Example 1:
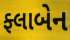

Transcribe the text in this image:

ફ્લાબેન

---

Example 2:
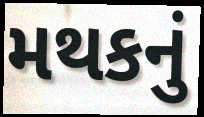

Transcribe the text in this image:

મથકનું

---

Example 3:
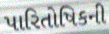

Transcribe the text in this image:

પારિતોષિકની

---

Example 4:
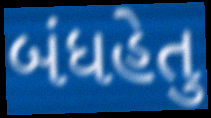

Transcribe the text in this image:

બંધહેતુ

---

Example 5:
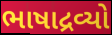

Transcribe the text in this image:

ભાષાદ્રવ્યો